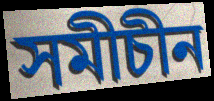
সমীচীন